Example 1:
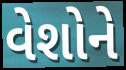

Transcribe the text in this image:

વેશોને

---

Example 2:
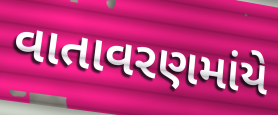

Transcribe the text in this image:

વાતાવરણમાંયે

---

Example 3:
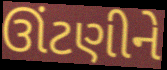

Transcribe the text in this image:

ઊંટણીને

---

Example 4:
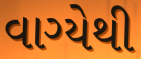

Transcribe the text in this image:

વાગ્યેથી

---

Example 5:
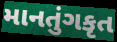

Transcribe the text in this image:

માનતુંગકૃત